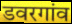
डवरगांव